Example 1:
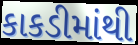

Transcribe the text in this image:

કાકડીમાંથી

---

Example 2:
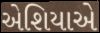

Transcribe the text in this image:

એશિયાએ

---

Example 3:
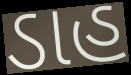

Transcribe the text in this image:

ડાહ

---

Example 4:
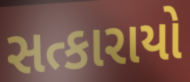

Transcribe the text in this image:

સત્કારાયો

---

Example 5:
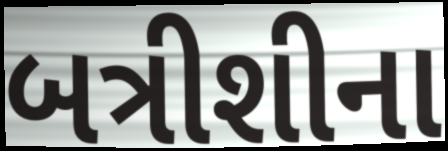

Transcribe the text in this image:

બત્રીશીના